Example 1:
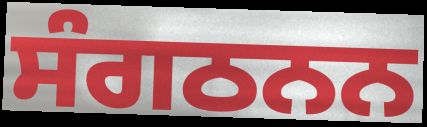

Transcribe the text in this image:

ਸੰਗਠਨਨ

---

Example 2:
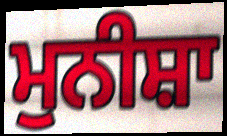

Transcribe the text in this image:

ਮੁਨੀਸ਼ਾ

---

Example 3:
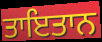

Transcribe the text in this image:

ਤਾਇਤਾਨ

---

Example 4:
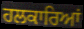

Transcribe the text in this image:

ਹਲਕਾਰਿਆਂ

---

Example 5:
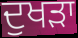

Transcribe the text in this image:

ਦੁਖੜਾ